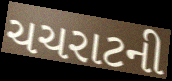
ચચરાટની